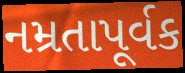
નમ્રતાપૂર્વક